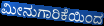
ಮೀನುಗಾರಿಕೆಯಿಂದ